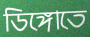
ডিঙ্গোতে